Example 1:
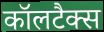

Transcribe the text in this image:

कॉलटैक्स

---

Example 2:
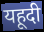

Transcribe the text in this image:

यहूदी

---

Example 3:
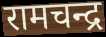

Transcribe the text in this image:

रामचन्द्र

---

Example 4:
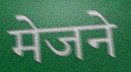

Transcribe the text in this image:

मेजने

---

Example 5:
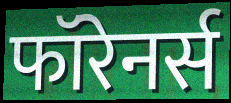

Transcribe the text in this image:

फॉरेनर्स